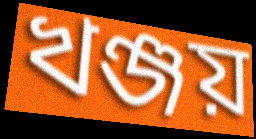
খঞ্জয়